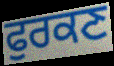
ਫੁਰਕਣ